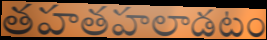
తహతహలాడటం